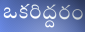
ఒకరిద్దరం